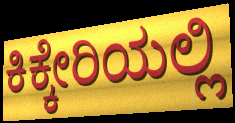
ಕಿಕ್ಕೇರಿಯಲ್ಲಿ